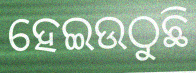
ହେଇଉଠୁଛି